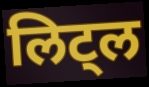
लिट्ल